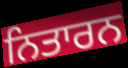
ਨਿਤਾਰਨ